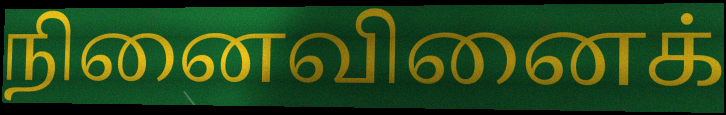
நினைவினைக்